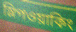
স্লিপওয়াকিং